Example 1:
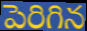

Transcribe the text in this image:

పెరిగిన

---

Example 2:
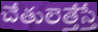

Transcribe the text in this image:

చేతులెత్తేస్తే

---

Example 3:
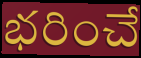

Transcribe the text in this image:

భరించే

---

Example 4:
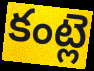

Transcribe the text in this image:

కంట్లె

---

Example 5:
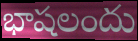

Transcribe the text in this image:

భాషలందు